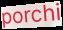
porchi